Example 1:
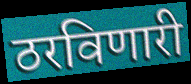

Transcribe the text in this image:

ठरविणारी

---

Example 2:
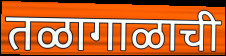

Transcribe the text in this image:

तळागाळाची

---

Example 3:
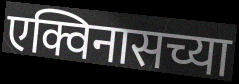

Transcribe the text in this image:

एक्विनासच्या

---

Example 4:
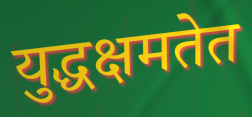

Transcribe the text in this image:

युद्धक्षमतेत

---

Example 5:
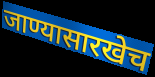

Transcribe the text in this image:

जाण्यासारखेच